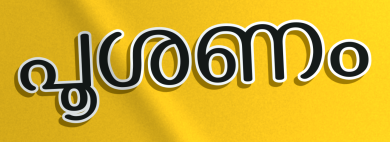
പൂശണം